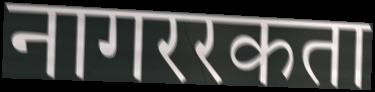
नागररकता